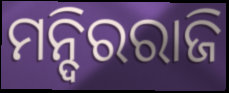
ମନ୍ଦିରରାଜି